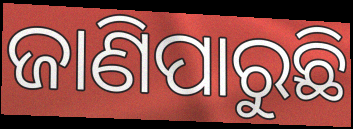
ଜାଣିପାରୁଛି